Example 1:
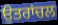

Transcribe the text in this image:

ਉਤਰਾਂਚਲ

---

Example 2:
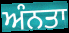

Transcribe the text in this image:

ਅੰਨਤਾ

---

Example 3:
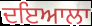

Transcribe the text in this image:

ਦਇਆਲਾ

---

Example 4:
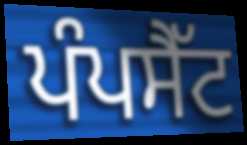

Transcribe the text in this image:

ਪੰਪਸੈੱਟ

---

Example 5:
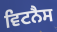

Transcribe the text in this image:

ਵਿਟਨੈਸ